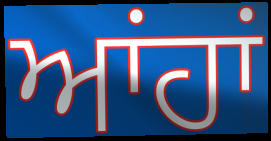
ਆਂਹਾਂ